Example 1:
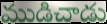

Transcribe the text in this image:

ముడిచాడు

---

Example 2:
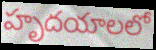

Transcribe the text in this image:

హృదయాలలో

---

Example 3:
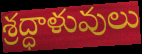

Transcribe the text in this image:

శ్రద్ధాళువులు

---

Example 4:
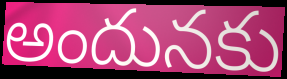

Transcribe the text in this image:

అందునకు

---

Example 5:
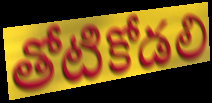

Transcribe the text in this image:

తోటికోడలి